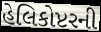
હેલિકોપ્ટરની